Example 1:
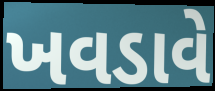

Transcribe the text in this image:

ખવડાવે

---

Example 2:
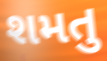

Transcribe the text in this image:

શમતુ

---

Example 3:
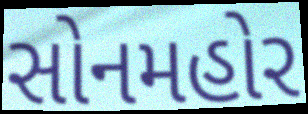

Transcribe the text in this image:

સોનમહોર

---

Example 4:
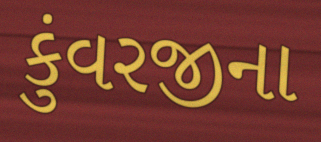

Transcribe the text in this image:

કુંવરજીના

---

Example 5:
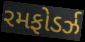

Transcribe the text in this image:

રમફોડર્ઝ